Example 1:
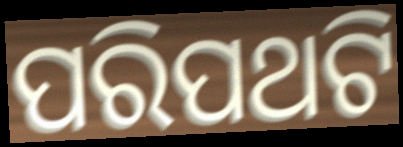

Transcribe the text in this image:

ପରିପଥଟି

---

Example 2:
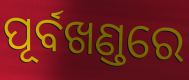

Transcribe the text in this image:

ପୂର୍ବଖଣ୍ଡରେ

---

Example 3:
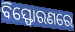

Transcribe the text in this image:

ବିସ୍ଫୋରଣରେ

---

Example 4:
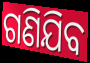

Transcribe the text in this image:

ଗଣିଯିବ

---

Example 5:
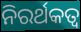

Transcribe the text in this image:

ନିରର୍ଥକତ୍ୱ